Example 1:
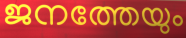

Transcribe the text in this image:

ജനത്തേയും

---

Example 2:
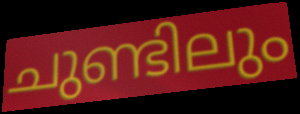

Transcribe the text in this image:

ചുണ്ടിലും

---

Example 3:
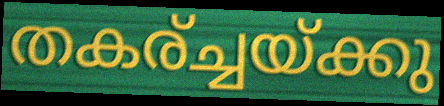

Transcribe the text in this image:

തകര്ച്ചയ്ക്കു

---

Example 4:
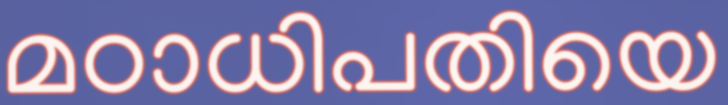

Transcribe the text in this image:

മഠാധിപതിയെ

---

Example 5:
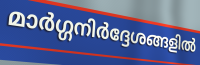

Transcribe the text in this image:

മാർഗ്ഗനിർദ്ദേശങ്ങളിൽ